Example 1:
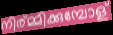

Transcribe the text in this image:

നിര്മ്മിക്കുമ്പോള്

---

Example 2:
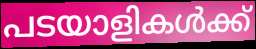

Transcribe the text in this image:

പടയാളികൾക്ക്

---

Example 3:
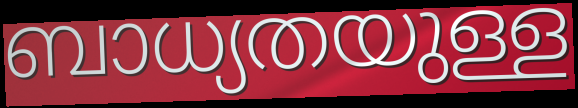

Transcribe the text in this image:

ബാധ്യതയുള്ള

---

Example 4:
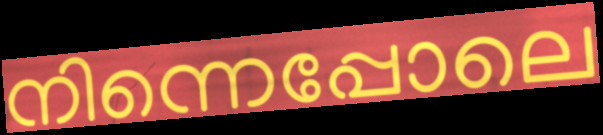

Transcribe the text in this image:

നിന്നെപ്പോലെ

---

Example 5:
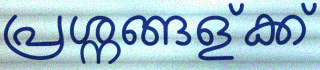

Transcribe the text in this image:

പ്രശ്നങ്ങള്ക്ക്